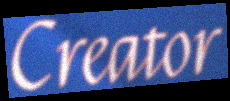
Creator